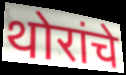
थोरांचे